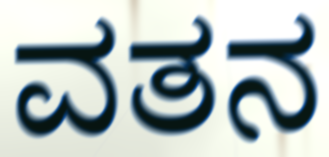
ವತನ